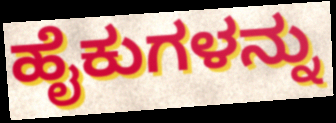
ಹೈಕುಗಳನ್ನು